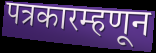
पत्रकारम्हणून